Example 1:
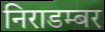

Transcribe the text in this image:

निराडम्बर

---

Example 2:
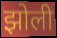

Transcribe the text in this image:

झोली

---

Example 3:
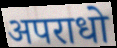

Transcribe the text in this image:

अपराधो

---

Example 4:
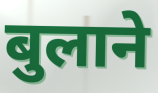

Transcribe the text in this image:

बुलाने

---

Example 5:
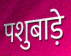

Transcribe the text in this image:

पशुबाड़े